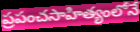
ప్రపంచసాహిత్యంలోనే